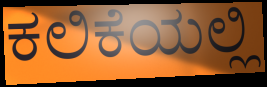
ಕಲಿಕೆಯಲ್ಲಿ